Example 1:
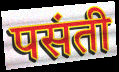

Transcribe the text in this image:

पसंती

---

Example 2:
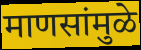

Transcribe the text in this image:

माणसांमुळे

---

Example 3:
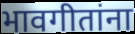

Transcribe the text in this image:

भावगीतांना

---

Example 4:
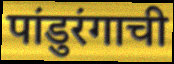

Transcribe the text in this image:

पांडुरंगाची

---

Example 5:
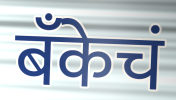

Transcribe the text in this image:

बॅंकेचं